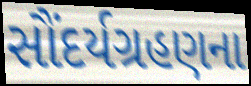
સૌંદર્યગ્રહણના